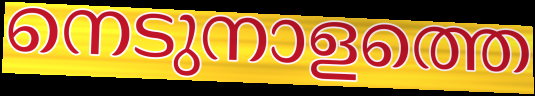
നെടുനാളത്തെ